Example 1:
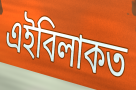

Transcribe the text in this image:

এইবিলাকত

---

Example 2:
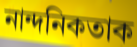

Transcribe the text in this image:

নান্দনিকতাক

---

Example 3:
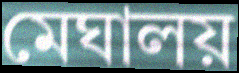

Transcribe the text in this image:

মেঘালয়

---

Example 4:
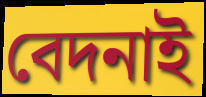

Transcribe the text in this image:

বেদনাই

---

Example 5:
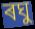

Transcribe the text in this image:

ৰঘু